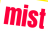
mist